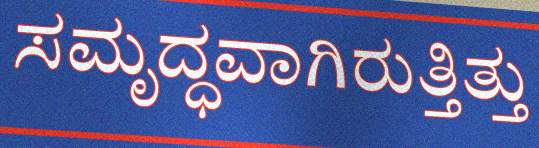
ಸಮೃದ್ಧವಾಗಿರುತ್ತಿತ್ತು